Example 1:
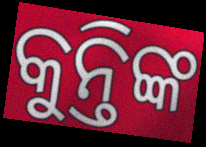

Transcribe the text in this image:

କୁନ୍ତିଙ୍କ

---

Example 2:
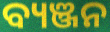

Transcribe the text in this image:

ବ୍ୟଞ୍ଜନ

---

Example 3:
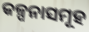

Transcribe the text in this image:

କଳ୍ପନାସମୂହ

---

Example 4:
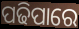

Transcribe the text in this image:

ପଢିପାରେ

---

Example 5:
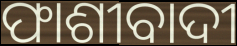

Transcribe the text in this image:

ଫାଶୀବାଦୀ